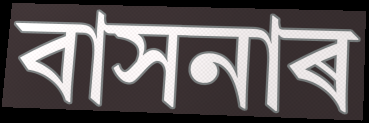
বাসনাৰ